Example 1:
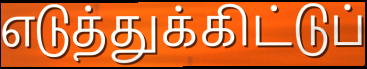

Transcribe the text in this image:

எடுத்துக்கிட்டுப்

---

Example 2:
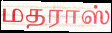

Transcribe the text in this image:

மதராஸ்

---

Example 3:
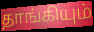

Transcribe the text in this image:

தாங்கியும்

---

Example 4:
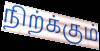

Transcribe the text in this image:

நிற்க்கும்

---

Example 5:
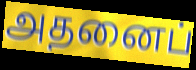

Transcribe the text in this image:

அதனைப்